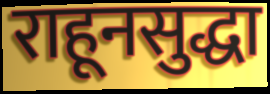
राहूनसुद्धा